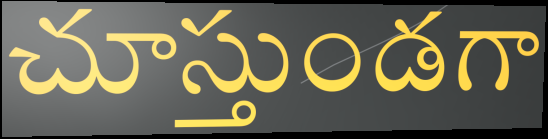
చూస్తుండగా